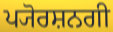
ਪ੍ਯੋਰਸ਼ਨਗੀ